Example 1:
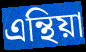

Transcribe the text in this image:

এন্থিয়া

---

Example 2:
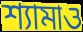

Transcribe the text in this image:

শ্যামাও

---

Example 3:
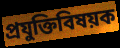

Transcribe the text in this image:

প্রযুক্তিবিষয়ক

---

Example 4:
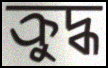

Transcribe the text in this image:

ক্রুদ্ধ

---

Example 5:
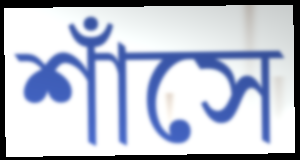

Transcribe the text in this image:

শাঁসে